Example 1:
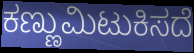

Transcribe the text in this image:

ಕಣ್ಣುಮಿಟುಕಿಸದೆ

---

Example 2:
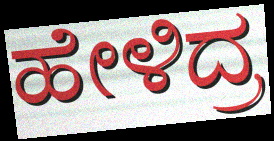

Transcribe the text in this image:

ಹೇಳಿದ್ರ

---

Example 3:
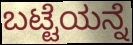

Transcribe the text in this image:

ಬಟ್ಟೆಯನ್ನೆ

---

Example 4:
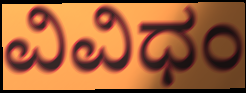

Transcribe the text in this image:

ವಿವಿಧಂ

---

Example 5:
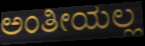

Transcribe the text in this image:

ಅಂತೀಯಲ್ಲ